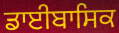
ਡਾਈਬਾਸਿਕ